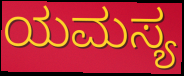
ಯಮಸ್ಯ